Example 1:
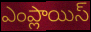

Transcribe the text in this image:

ఎంప్లాయిస్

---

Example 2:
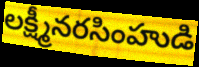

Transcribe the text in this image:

లక్ష్మీనరసింహుడి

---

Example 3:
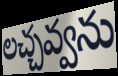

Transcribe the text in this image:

లచ్చవ్వను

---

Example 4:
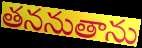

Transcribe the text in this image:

తననుతాను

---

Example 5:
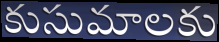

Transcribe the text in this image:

కుసుమాలకు